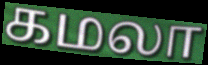
கமலா